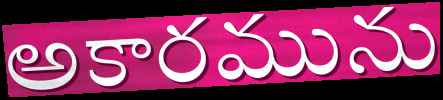
అకారమును